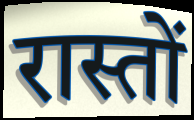
रास्तों